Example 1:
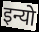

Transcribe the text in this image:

इन्यो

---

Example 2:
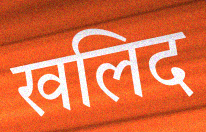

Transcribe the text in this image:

खलिद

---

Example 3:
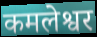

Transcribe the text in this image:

कमलेश्वर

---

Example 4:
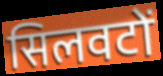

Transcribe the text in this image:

सिलवटों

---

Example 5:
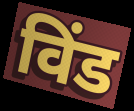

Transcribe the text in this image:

विंड